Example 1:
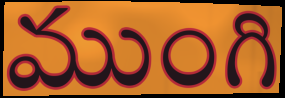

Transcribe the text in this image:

ముంగి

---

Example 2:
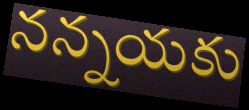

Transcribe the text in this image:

నన్నయకు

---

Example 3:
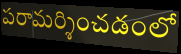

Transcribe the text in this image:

పరామర్శించడంలో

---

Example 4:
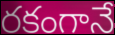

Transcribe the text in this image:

రకంగానే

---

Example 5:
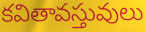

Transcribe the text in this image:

కవితావస్తువులు